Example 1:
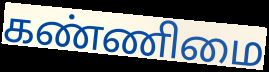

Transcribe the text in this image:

கண்ணிமை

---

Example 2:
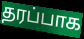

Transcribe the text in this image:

தரப்பாக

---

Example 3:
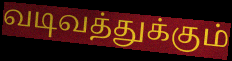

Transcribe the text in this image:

வடிவத்துக்கும்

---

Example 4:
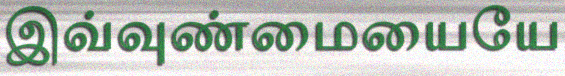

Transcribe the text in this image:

இவ்வுண்மையையே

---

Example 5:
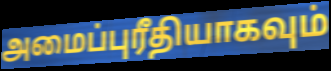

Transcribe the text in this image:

அமைப்புரீதியாகவும்